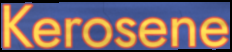
Kerosene